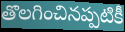
తొలగించినప్పటికీ